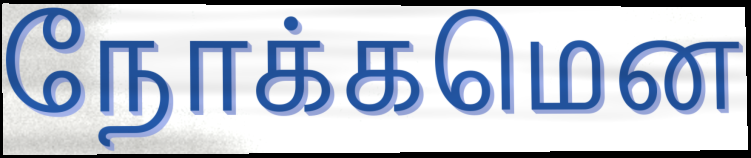
நோக்கமென